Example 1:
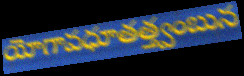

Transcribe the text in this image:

యోగావధూతత్త్వంబున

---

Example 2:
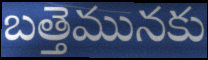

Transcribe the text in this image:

బత్తెమునకు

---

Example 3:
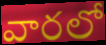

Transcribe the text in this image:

వారలో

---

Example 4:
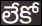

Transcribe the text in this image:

లేకో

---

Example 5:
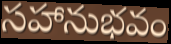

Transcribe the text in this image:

సహానుభవం